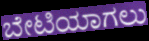
ಬೇಟಿಯಾಗಲು